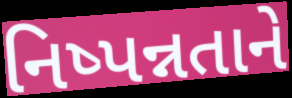
નિષ્પન્નતાને